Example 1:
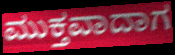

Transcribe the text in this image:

ಮುಕ್ತವಾದಾಗ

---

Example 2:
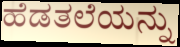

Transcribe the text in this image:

ಹೆಡತಲೆಯನ್ನು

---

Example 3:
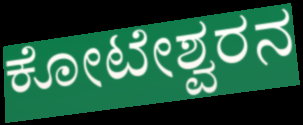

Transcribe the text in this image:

ಕೋಟೇಶ್ವರನ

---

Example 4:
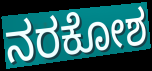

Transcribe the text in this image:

ನರಕೋಶ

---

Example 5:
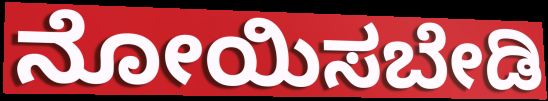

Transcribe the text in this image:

ನೋಯಿಸಬೇಡಿ